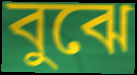
বুঝে